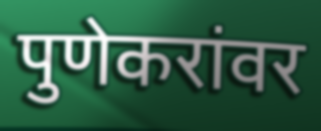
पुणेकरांवर